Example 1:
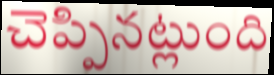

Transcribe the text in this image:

చెప్పినట్లుంది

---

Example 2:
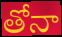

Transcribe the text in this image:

తోనా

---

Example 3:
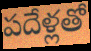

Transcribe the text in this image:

పదేళ్లతో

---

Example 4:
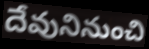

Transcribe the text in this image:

దేవునినుంచి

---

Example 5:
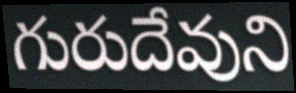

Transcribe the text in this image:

గురుదేవుని